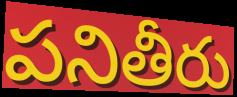
పనితీరు